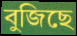
বুজিছে